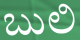
ಬುಲಿ